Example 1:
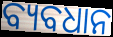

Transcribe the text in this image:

ବ୍ୟବଧାନ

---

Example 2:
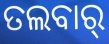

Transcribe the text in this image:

ତଲବାର୍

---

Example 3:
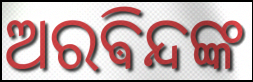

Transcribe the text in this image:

ଅରଵିନ୍ଦଙ୍କ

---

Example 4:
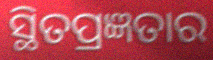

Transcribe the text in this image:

ସ୍ଥିତପ୍ରଜ୍ଞତାର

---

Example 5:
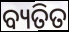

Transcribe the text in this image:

ବ୍ୟତିତ